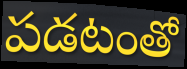
పడటంతో